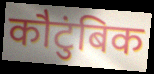
कौटुंबिक